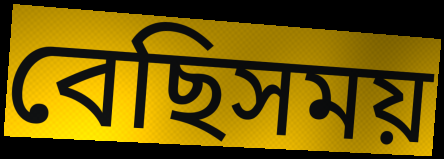
বেছিসময়